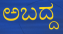
ಅಬದ್ದ